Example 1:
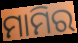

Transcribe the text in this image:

ମାମିର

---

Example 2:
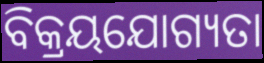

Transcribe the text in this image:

ବିକ୍ରୟଯୋଗ୍ୟତା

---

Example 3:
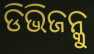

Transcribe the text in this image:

ଡିଭିଜନ୍କୁ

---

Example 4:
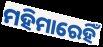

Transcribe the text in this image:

ମହିମାରେହିଁ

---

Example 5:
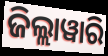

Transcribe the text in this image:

ଜିଲ୍ଲାୱାରି